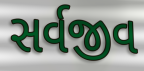
સર્વજીવ